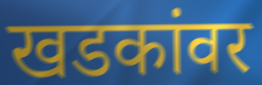
खडकांवर